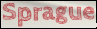
Sprague